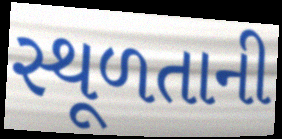
સ્થૂળતાની